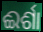
ଈର୍ଶା